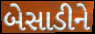
બેસાડીને